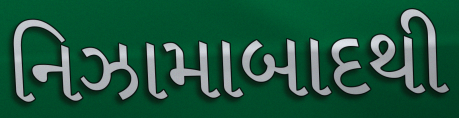
નિઝામાબાદથી